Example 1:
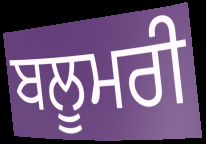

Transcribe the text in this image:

ਬਲੂਮਰੀ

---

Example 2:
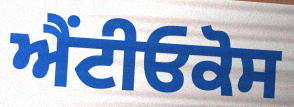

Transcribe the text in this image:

ਐਂਟੀਓਕੋਸ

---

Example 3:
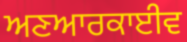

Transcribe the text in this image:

ਅਣਆਰਕਾਈਵ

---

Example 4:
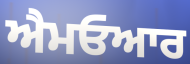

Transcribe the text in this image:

ਐਮਓਆਰ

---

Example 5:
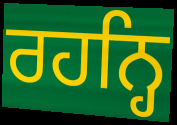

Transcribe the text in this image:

ਰਹਨ੍ਹਿ